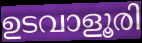
ഉടവാളൂരി